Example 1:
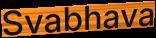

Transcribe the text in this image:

Svabhava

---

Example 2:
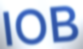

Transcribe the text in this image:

IOB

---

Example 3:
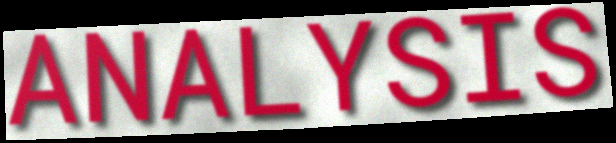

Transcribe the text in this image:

ANALYSIS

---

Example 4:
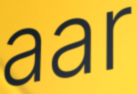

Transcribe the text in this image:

aar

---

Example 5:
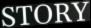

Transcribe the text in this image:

STORY